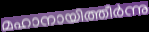
മഹാനായിത്തീർന്നു